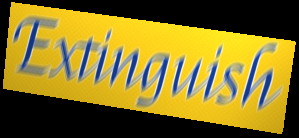
Extinguish